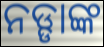
ନଡ୍ଡାଙ୍କ